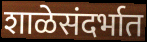
शाळेसंदर्भात